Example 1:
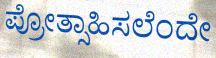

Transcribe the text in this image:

ಪ್ರೋತ್ಸಾಹಿಸಲೆಂದೇ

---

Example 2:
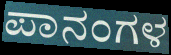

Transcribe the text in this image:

ಪಾನಂಗಳ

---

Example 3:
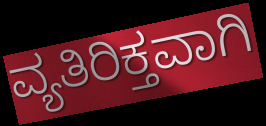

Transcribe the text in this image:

ವ್ಯತಿರಿಕ್ತವಾಗಿ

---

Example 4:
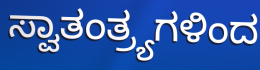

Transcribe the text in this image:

ಸ್ವಾತಂತ್ರ್ಯಗಳಿಂದ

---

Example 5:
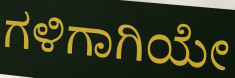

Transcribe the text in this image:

ಗಳಿಗಾಗಿಯೇ